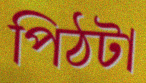
পিঠটা